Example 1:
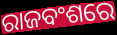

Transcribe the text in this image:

ରାଜବଂଶରେ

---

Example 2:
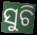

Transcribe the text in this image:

ସୁଚି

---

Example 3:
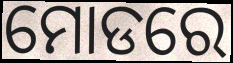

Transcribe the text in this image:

ମୋଡରେ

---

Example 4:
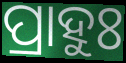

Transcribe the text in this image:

ପ୍ରାହୁଃ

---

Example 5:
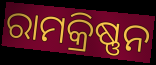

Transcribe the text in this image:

ରାମକ୍ରିଷ୍ଣନ